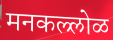
मनकल्लोळ